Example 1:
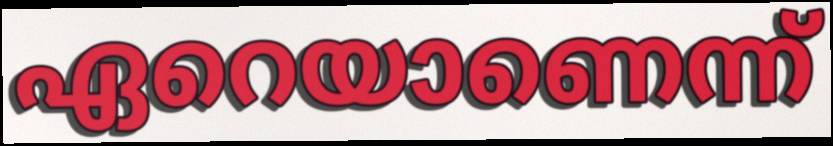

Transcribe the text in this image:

ഏറെയാണെന്ന്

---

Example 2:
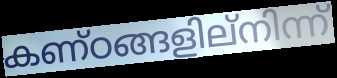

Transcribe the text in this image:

കണ്ഠങ്ങളില്നിന്ന്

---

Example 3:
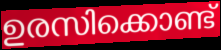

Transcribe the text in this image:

ഉരസിക്കൊണ്ട്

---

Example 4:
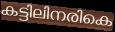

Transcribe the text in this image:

കട്ടിലിനരികെ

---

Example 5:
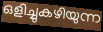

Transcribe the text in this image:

ഒളിച്ചുകഴിയുന്ന